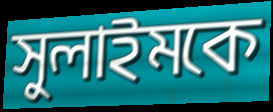
সুলাইমকে